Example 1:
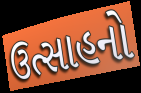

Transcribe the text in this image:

ઉત્સાહનો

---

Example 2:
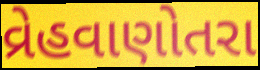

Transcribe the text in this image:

વ્રેહવાણોતરા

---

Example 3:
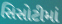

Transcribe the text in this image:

સિસોટીમાં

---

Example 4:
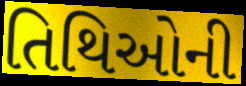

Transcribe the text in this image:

તિથિઓની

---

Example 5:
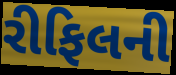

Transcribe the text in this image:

રીફિલની